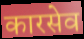
कारसेव